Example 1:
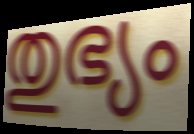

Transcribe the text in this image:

തുഭ്യം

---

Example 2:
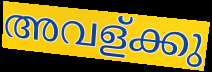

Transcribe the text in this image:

അവള്ക്കു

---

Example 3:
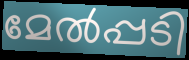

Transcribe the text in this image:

മേൽപ്പടി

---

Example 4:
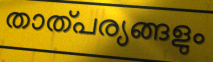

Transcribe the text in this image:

താത്പര്യങ്ങളും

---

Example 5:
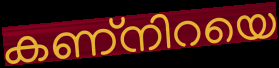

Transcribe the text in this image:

കണ്നിറയെ